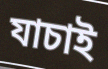
যাচাই